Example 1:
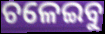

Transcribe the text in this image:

ଚଳେଇବୁ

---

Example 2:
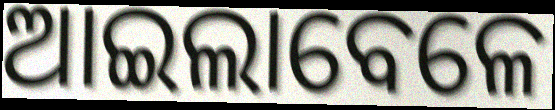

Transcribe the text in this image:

ଆଇଲାବେଳେ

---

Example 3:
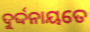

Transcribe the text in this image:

ଦୁର୍ଦ୍ଦନାୟତେ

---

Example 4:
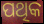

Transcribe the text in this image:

ପଥିକ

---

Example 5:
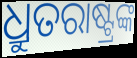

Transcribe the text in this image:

ଧ୍ରୁତରାଷ୍ଟ୍ରଙ୍କ